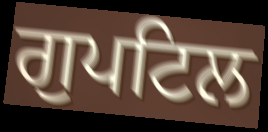
ਗੁਪਟਿਲ